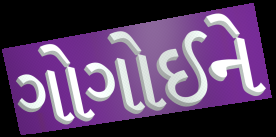
ગોગોઈને